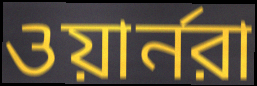
ওয়ার্নরা